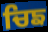
ਚਿਙ